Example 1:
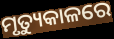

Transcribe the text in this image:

ମୃତ୍ୟୁକାଳରେ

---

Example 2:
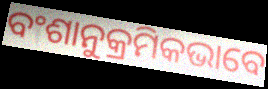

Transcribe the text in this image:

ବଂଶାନୁକ୍ରମିକଭାବେ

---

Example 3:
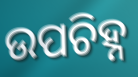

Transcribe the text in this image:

ଉପଚିହ୍ନ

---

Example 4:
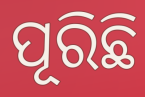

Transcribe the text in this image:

ପୂରିଛି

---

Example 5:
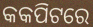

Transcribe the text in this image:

କକପିଟରେ